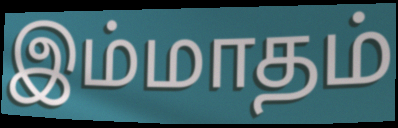
இம்மாதம்